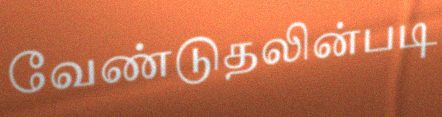
வேண்டுதலின்படி